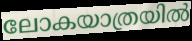
ലോകയാത്രയിൽ